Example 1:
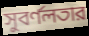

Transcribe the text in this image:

সুবর্ণলতার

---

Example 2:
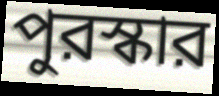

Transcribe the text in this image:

পুরস্কার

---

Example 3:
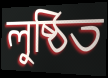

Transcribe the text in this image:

লুষ্ঠিত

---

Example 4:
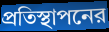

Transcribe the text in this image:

প্রতিস্থাপনের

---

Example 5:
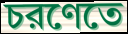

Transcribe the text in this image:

চরণেতে